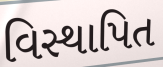
વિસ્થાપિત